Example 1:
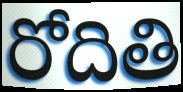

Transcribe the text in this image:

రోదితి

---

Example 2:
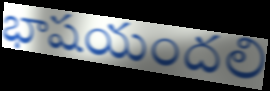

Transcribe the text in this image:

భాషయందలి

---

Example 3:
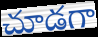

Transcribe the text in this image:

చూడగా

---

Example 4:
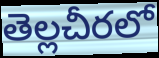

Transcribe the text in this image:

తెల్లచీరలో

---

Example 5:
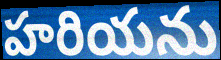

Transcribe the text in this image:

హరియను